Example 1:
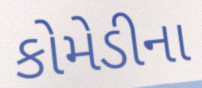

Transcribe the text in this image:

કોમેડીના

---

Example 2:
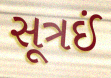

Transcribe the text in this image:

સૂત્રઈં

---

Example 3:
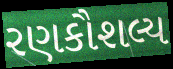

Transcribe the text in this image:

રણકૌશલ્ય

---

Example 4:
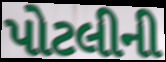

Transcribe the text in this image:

પોટલીની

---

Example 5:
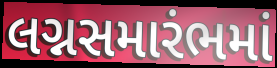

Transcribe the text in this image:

લગ્નસમારંભમાં